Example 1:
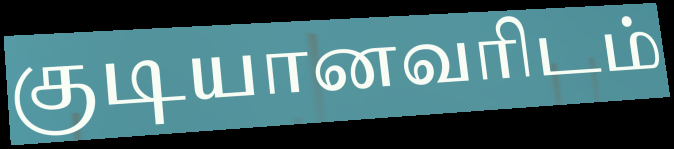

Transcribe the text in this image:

குடியானவரிடம்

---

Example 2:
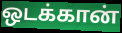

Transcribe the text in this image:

ஒடக்கான்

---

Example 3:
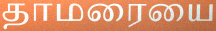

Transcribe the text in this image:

தாமரையை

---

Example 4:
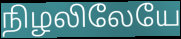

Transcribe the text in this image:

நிழலிலேயே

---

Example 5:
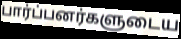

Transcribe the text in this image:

பார்ப்பனர்களுடைய